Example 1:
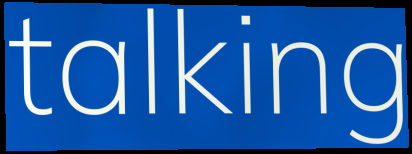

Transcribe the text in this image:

talking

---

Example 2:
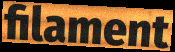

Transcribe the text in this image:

filament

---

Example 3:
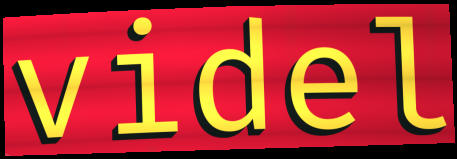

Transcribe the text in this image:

videl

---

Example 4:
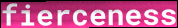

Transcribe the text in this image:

fierceness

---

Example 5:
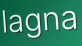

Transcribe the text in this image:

lagna